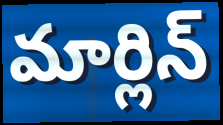
మార్లిన్